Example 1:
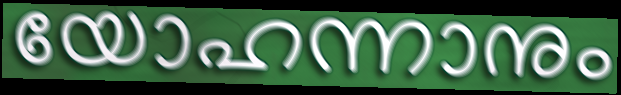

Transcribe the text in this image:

യോഹന്നാനും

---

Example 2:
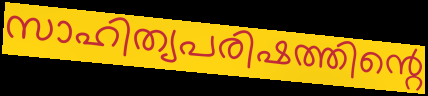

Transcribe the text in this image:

സാഹിത്യപരിഷത്തിന്റെ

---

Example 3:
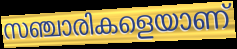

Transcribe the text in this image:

സഞ്ചാരികളെയാണ്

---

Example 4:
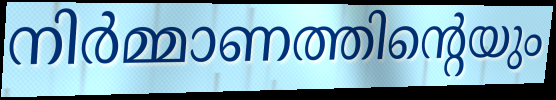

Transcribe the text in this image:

നിർമ്മാണത്തിന്റെയും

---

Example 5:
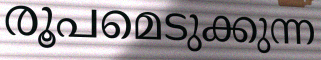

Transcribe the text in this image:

രൂപമെടുക്കുന്ന